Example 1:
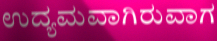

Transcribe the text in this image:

ಉದ್ಯಮವಾಗಿರುವಾಗ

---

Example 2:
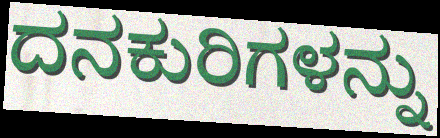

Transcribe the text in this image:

ದನಕುರಿಗಳನ್ನು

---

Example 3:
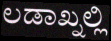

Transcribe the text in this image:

ಲಡಾಖ್ನಲ್ಲಿ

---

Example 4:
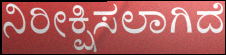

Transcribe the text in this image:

ನಿರೀಕ್ಷಿಸಲಾಗಿದೆ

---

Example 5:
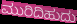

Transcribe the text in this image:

ಮುರಿದಿಹುದು